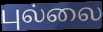
புல்லை